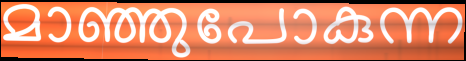
മാഞ്ഞുപോകുന്ന